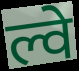
ल्वे